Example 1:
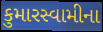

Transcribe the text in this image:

કુમારસ્વામીના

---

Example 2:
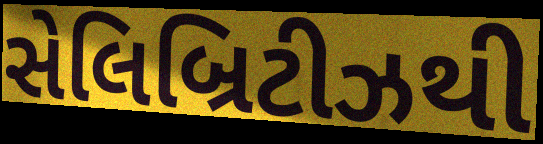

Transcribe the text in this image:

સેલિબ્રિટીઝથી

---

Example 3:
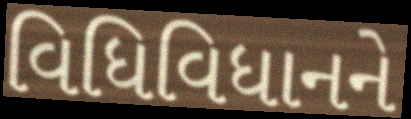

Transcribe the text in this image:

વિધિવિધાનને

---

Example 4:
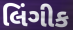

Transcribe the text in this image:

લિંગીક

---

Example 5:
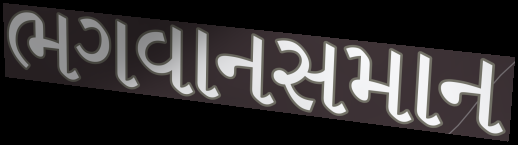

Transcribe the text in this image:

ભગવાનસમાન